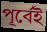
পূৰ্বেই